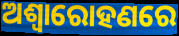
ଅଶ୍ଵାରୋହଣରେ